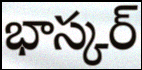
భాస్కర్